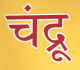
चंद्रू